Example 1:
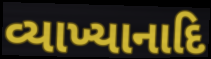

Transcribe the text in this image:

વ્યાખ્યાનાદિ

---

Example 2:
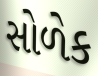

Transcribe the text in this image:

સોળેક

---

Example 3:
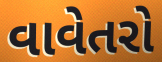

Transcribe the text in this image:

વાવેતરો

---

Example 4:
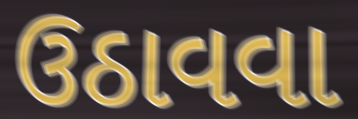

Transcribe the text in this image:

ઉઠાવવા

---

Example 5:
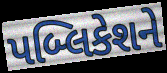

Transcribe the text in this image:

પબ્લિકેશને